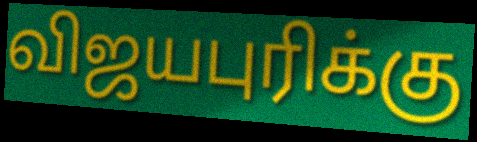
விஜயபுரிக்கு